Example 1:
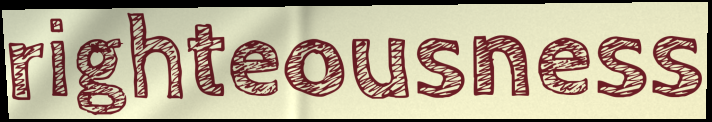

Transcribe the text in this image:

righteousness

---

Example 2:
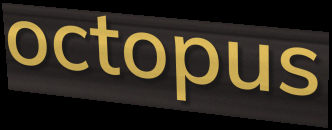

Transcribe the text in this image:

octopus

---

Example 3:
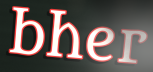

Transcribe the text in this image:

bher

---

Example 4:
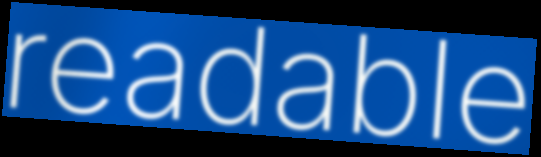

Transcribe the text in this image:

readable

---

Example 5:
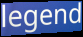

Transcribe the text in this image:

legend